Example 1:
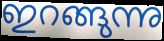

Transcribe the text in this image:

ഇറങ്ങുന്നു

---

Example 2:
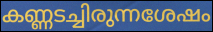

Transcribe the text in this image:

കണ്ണടച്ചിരുന്നശേഷം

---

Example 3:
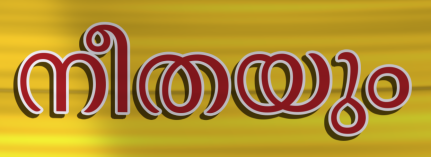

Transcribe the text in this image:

നീതയും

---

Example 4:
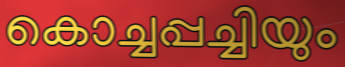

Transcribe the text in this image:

കൊച്ചപ്പച്ചിയും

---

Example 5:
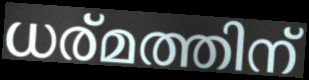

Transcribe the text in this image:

ധര്മത്തിന്